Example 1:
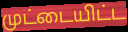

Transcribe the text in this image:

முட்டையிட்ட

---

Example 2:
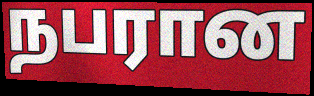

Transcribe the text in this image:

நபரான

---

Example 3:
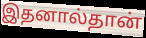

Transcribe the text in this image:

இதனால்தான்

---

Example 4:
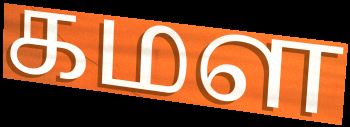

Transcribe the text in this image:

கமள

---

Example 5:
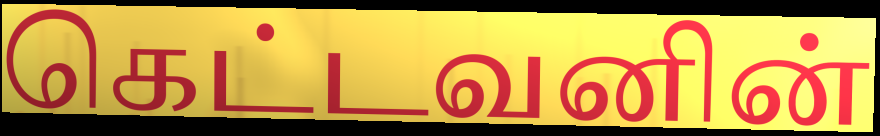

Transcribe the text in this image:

கெட்டவனின்